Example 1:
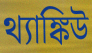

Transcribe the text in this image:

থ্যাঙ্কিউ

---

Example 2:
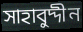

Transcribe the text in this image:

সাহাবুদ্দীন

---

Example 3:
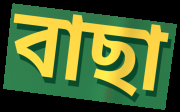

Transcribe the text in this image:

বাছা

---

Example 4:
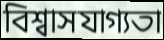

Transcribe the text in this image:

বিশ্বাসযাগ্যতা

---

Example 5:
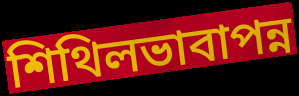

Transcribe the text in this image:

শিথিলভাবাপন্ন